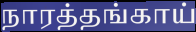
நாரத்தங்காய்